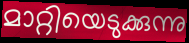
മാറ്റിയെടുക്കുന്നു